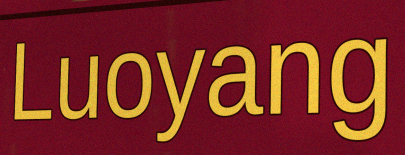
Luoyang